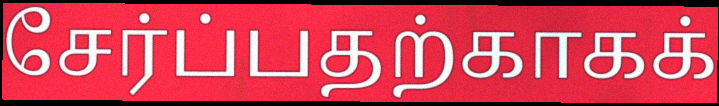
சேர்ப்பதற்காகக்